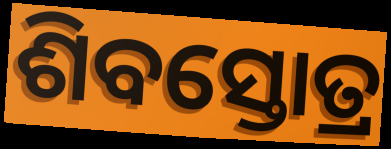
ଶିବସ୍ତୋତ୍ର